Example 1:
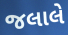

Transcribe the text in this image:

જલાલે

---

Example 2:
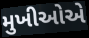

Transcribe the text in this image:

મુખીઓએ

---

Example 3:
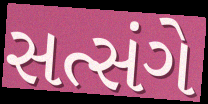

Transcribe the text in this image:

સત્સંગે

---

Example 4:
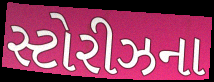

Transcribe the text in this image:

સ્ટોરીઝના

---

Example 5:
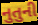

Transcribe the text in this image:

નુતુની